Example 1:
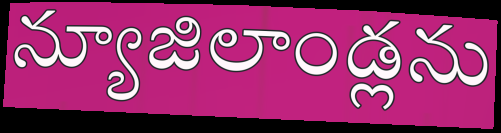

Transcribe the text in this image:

న్యూజిలాండ్లను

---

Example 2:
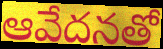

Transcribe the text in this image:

ఆవేదనతో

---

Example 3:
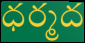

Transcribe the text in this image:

ధర్మద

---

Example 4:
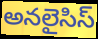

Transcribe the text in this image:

అనలైసిస్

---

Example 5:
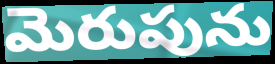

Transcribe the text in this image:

మెరుపును